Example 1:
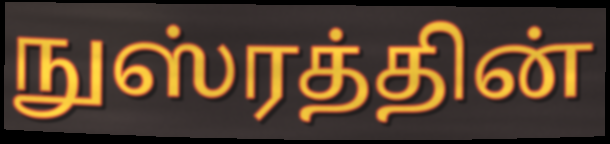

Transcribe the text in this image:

நுஸ்ரத்தின்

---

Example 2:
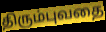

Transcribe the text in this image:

திரும்புவதை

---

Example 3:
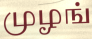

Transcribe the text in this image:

முழங்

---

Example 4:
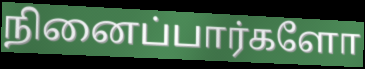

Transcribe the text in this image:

நினைப்பார்களோ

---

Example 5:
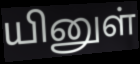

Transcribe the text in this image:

யினுள்